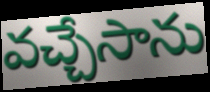
వచ్చేసాను